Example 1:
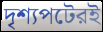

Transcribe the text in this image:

দৃশ্যপটেরই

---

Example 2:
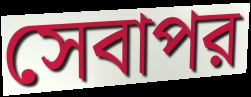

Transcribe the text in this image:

সেবাপর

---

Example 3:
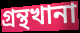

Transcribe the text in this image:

গ্রন্থখানা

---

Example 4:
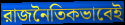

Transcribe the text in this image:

রাজনৈতিকভাবেই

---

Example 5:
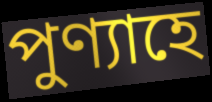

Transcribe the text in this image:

পুণ্যাহে